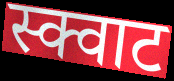
स्क्वाट